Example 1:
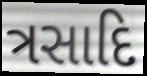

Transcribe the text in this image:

ત્રસાદિ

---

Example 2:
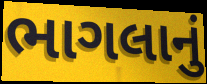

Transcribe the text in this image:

ભાગલાનું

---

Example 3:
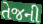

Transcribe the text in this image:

તેજની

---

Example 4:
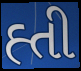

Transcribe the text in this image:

હ્તી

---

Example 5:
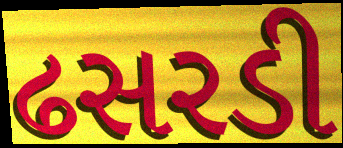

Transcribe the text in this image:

ઢસરડી